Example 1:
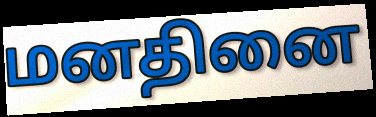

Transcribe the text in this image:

மனதினை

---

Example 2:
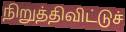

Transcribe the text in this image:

நிறுத்திவிட்டுச்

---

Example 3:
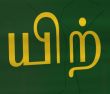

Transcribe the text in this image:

யிற்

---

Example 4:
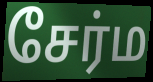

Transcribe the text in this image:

சேர்ம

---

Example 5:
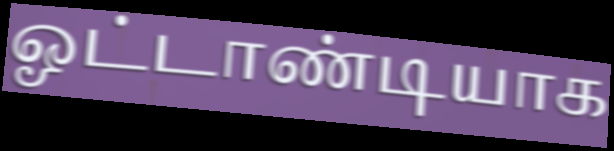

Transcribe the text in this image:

ஓட்டாண்டியாக